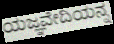
ಯಜ್ಞವೇದಿಯನ್ನ